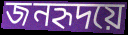
জনহৃদয়ে